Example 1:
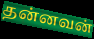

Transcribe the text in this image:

தன்னவன்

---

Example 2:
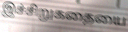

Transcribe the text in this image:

இச்சிறுகதையை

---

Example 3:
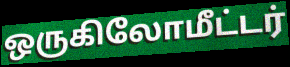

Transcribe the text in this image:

ஒருகிலோமீட்டர்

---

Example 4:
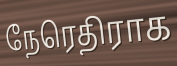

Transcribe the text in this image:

நேரெதிராக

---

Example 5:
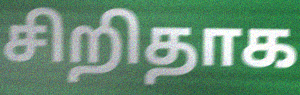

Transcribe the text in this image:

சிறிதாக